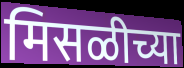
मिसळीच्या